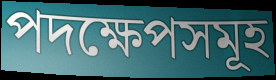
পদক্ষেপসমূহ